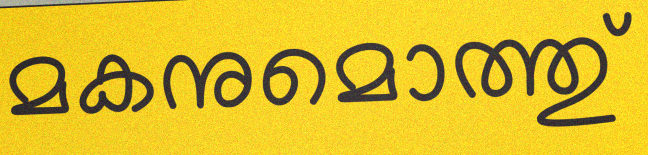
മകനുമൊത്തു്